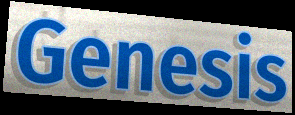
Genesis